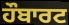
ਹੌਬਾਰਟ